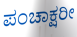
ಪಂಚಾಕ್ಷರೀ